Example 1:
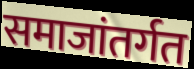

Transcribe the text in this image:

समाजांतर्गत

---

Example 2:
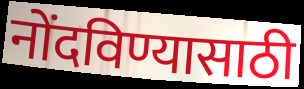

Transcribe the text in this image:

नोंदविण्यासाठी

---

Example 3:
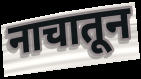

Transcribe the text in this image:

नाचातून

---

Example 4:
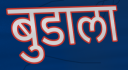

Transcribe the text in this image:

बुडाला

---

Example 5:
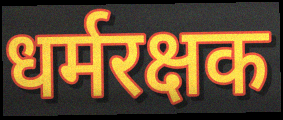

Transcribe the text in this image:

धर्मरक्षक